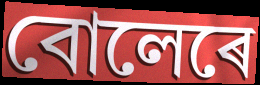
বোলেৰে